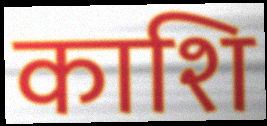
काशि